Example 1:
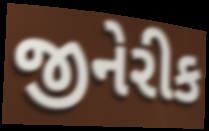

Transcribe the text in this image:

જીનેરીક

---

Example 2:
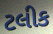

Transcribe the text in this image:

ટલીક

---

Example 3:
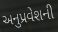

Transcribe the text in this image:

અનુપ્રવેશની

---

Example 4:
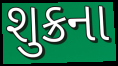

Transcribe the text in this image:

શુક્રના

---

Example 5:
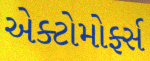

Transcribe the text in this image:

એક્ટોમોર્ફ્સ